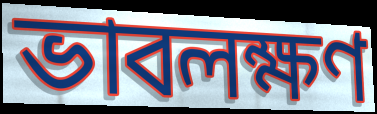
ভাবলক্ষণ